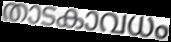
താടകാവധം